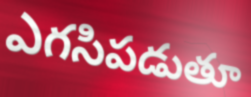
ఎగసిపడుతూ